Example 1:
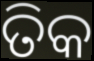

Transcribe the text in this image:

ତିକ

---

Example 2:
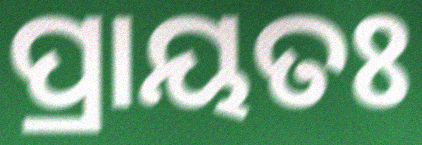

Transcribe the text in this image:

ପ୍ରାୟତଃ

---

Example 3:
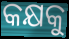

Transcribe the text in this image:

କକ୍ଷକୁ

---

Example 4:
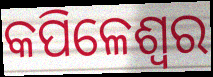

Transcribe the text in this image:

କପିଳେଶ୍ଵର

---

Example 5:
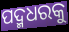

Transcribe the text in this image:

ପଦ୍ମଧରକୁ